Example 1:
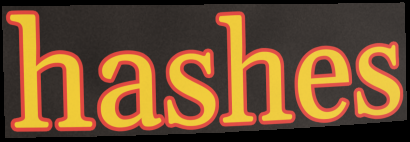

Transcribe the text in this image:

hashes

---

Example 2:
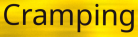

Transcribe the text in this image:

Cramping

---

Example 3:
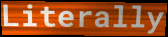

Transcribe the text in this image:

Literally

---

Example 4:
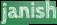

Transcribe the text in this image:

janish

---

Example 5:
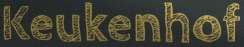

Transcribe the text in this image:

Keukenhof